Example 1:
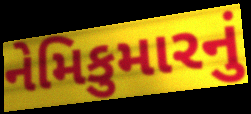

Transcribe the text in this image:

નેમિકુમારનું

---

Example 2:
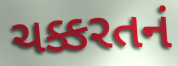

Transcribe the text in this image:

ચક્કરતનં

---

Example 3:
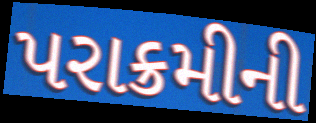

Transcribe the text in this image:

પરાક્રમીની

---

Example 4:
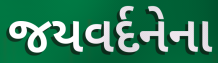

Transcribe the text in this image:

જયવર્દનેના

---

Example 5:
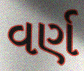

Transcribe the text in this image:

વર્ણ